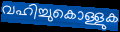
വഹിച്ചുകൊള്ളുക